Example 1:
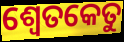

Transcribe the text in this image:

ଶ୍ୱେତକେତୁ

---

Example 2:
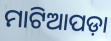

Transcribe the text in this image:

ମାଟିଆପଡ଼ା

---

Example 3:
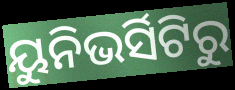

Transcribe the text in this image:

ୟୁନିଭର୍ସିଟିରୁ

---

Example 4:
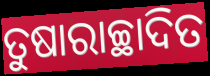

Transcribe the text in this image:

ତୁଷାରାଚ୍ଛାଦିତ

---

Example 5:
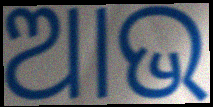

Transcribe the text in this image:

ଆଭ